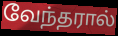
வேந்தரால்